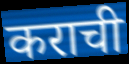
कराची